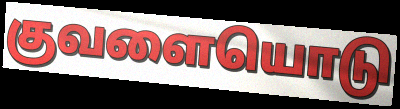
குவளையொடு